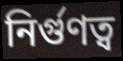
নির্গুণত্ব